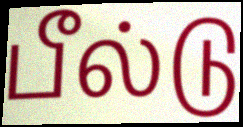
பீல்டு